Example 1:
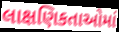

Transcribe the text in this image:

લાક્ષણિકતાઓમાં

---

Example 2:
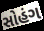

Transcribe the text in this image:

સોહંગ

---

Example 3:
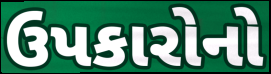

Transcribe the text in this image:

ઉપકારોનો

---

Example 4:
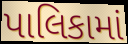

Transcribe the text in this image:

પાલિકામાં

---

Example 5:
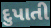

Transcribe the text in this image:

દુપાતી